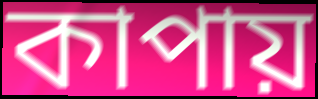
কাপায়